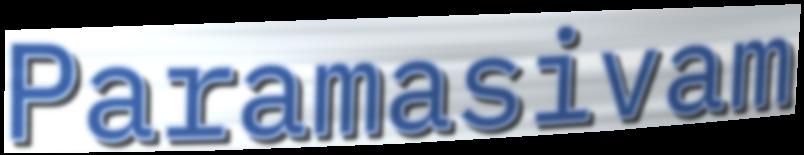
Paramasivam